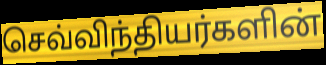
செவ்விந்தியர்களின்